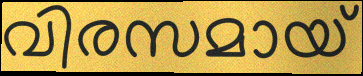
വിരസമായ്